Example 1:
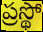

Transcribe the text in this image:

ప్రస్థో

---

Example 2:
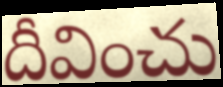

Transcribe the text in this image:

దీవించు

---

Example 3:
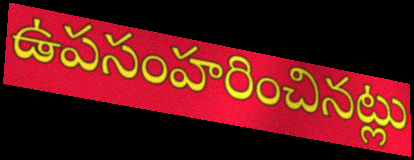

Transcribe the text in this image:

ఉపసంహరించినట్లు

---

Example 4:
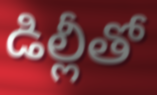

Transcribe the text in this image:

డిల్లీతో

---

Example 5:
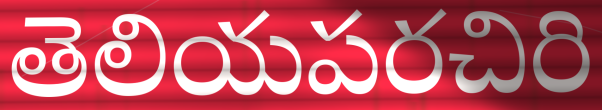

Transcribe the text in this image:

తెలియపరచిరి